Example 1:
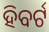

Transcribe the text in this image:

ହିବର୍ଟ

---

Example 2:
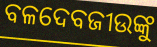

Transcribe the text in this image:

ବଳଦେବଜୀଉଙ୍କୁ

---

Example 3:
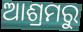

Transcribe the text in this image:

ଆଶ୍ରମରୁ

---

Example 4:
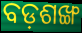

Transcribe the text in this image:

ବଡ଼ଶଙ୍ଖ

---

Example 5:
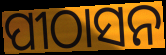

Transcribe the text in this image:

ପୀଠାସନ